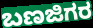
ಬಣಜಿಗರ